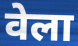
वेला